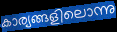
കാര്യങ്ങളിലൊന്നു